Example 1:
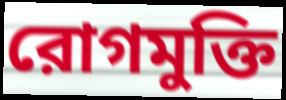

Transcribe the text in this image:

রোগমুক্তি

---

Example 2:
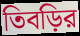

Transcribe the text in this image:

তিবড়ির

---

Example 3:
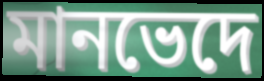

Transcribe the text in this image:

মানভেদে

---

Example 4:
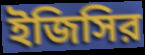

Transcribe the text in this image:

ইজিসির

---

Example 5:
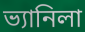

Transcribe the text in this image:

ভ্যানিলা